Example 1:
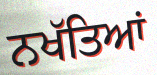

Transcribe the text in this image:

ਨਖੱਤਿਆਂ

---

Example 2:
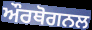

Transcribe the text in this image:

ਔਰਥੋਗਨਲ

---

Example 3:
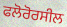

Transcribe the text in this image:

ਫਲੋਰੋਰਸੀਲ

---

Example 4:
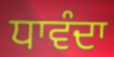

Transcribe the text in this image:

ਧਾਵੰਦਾ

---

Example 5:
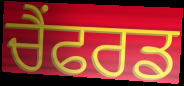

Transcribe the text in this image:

ਚੈਂਫਰਡ